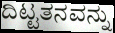
ದಿಟ್ಟತನವನ್ನು